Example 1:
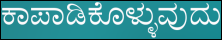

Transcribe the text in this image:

ಕಾಪಾಡಿಕೊಳ್ಳುವುದು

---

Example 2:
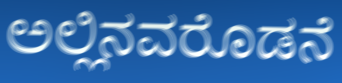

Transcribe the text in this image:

ಅಲ್ಲಿನವರೊಡನೆ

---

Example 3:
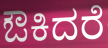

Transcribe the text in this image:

ಔಕಿದರೆ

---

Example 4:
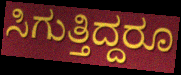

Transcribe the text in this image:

ಸಿಗುತ್ತಿದ್ದರೂ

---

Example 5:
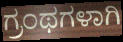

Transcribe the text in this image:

ಗ್ರಂಥಗಳಾಗಿ